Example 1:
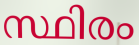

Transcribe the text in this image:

സ്ഥിരം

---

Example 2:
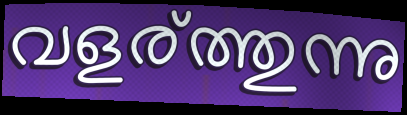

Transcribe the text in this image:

വളര്ത്തുന്നു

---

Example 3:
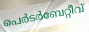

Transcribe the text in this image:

പെർടർബേറ്റീവ്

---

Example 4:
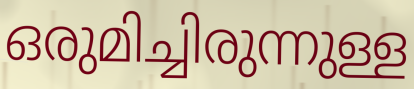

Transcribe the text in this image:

ഒരുമിച്ചിരുന്നുള്ള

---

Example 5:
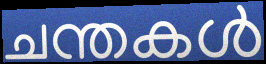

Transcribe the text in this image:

ചന്തകൾ